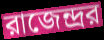
রাজেন্দ্রর